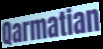
Qarmatian